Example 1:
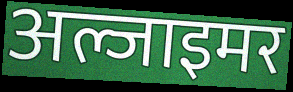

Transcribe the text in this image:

अल्जाइमर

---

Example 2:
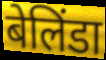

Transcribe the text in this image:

बेलिंडा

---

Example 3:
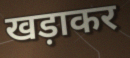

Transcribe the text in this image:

खड़ाकर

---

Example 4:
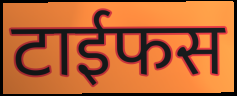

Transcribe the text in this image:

टाईफस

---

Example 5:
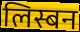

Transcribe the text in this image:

लिस्बन